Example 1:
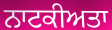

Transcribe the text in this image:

ਨਾਟਕੀਅਤਾ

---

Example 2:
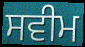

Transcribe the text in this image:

ਸਵੀਮ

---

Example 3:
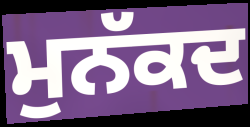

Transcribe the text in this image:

ਮੁਨੱਕਦ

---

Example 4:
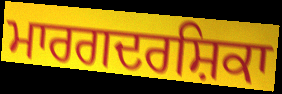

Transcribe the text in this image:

ਮਾਰਗਦਰਸ਼ਿਕਾ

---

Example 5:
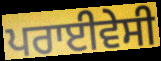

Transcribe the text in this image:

ਪਰਾਈਵੇਸੀ